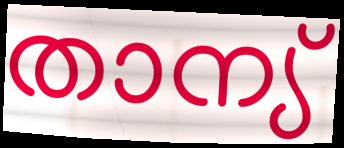
താന്യ്